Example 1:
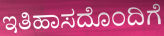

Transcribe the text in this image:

ಇತಿಹಾಸದೊಂದಿಗೆ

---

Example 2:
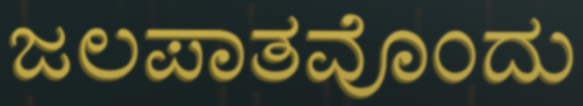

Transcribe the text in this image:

ಜಲಪಾತವೊಂದು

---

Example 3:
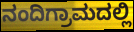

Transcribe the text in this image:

ನಂದಿಗ್ರಾಮದಲ್ಲಿ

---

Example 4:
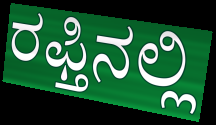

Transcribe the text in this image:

ರಫ್ತಿನಲ್ಲಿ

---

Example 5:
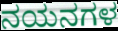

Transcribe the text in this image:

ನಯನಗಳ